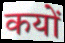
कयों